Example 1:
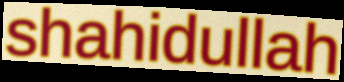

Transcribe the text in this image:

shahidullah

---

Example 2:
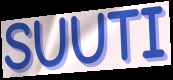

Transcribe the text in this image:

SUUTI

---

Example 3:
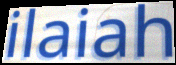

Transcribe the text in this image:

ilaiah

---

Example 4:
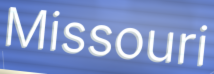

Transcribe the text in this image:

Missouri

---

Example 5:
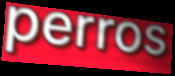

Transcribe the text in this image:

perros